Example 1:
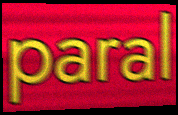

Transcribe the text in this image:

paral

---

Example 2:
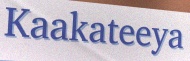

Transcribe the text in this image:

Kaakateeya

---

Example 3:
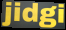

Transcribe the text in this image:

jidgi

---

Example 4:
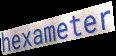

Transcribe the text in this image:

hexameter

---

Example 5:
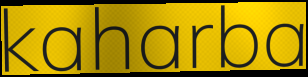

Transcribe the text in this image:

kaharba